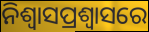
ନିଶ୍ୱାସପ୍ରଶ୍ୱାସରେ